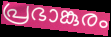
പ്രഭാങ്കുരം